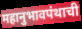
महानुभावपंथाची